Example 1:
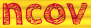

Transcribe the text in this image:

ncov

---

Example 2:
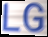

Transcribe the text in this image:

LG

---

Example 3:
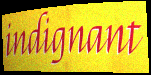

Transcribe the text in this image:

indignant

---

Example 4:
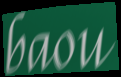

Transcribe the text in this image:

baou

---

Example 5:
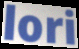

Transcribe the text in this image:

lori